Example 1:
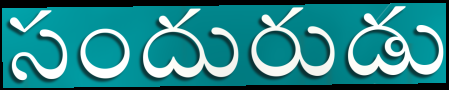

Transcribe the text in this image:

సందురుడు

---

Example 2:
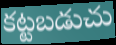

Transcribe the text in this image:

కట్టబడుచు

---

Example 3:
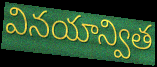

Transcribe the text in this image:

వినయాన్విత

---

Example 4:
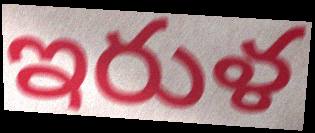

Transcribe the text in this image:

ఇరుళ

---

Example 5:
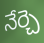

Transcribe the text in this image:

నేర్చె